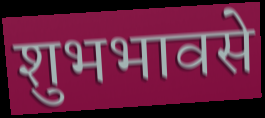
शुभभावसे